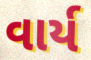
વાર્ય